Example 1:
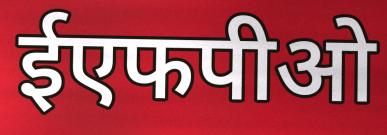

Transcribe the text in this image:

ईएफपीओ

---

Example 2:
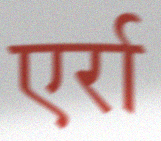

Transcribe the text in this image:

एर्रा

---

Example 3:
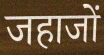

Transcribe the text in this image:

जहाजों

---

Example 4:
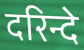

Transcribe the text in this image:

दरिन्दे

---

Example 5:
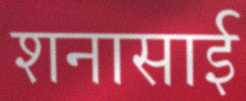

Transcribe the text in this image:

शनासाई